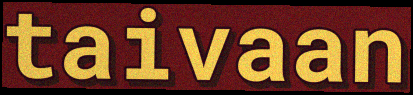
taivaan